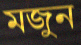
মজুন